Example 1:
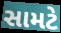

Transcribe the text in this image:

સામટે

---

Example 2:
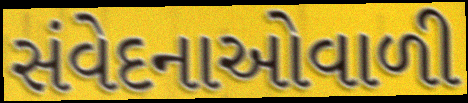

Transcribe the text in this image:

સંવેદનાઓવાળી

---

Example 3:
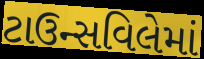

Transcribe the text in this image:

ટાઉન્સવિલેમાં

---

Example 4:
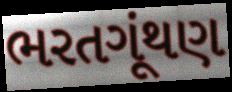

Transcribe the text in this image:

ભરતગૂંથણ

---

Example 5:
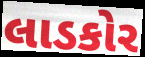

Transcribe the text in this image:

લાડકોર